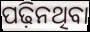
ପଢ଼ିନଥିବା